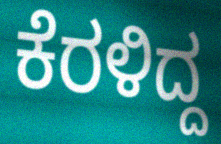
ಕೆರಳಿದ್ದ